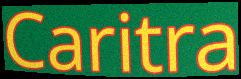
Caritra